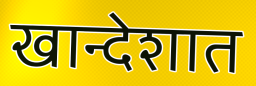
खान्देशात